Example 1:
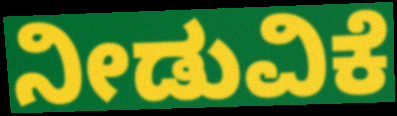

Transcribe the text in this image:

ನೀಡುವಿಕೆ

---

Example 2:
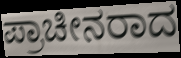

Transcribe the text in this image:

ಪ್ರಾಚೀನರಾದ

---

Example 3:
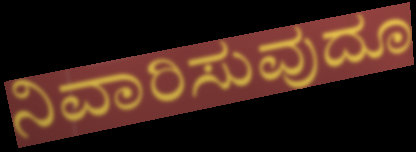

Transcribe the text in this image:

ನಿವಾರಿಸುವುದೂ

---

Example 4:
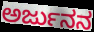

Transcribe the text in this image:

ಅರ್ಜುನನ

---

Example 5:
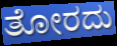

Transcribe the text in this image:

ತೋರದು